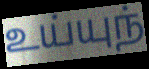
உய்யுந்